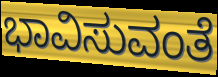
ಭಾವಿಸುವಂತೆ